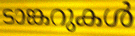
ടാങ്കറുകൾ